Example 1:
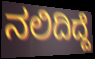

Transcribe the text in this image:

ನಲಿದಿದ್ದೆ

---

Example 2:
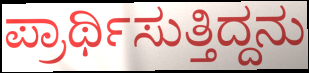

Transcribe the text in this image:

ಪ್ರಾರ್ಥಿಸುತ್ತಿದ್ದನು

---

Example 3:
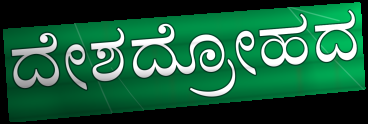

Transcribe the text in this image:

ದೇಶದ್ರೋಹದ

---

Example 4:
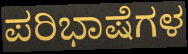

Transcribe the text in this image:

ಪರಿಭಾಷೆಗಳ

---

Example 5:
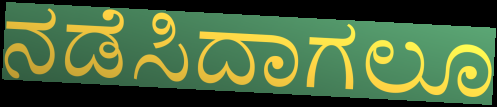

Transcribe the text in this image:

ನಡೆಸಿದಾಗಲೂ